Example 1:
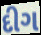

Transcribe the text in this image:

દીગ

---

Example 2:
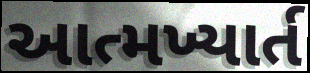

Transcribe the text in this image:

આત્મખ્યાર્ત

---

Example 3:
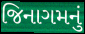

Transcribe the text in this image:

જિનાગમનું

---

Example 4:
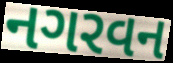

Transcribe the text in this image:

નગરવન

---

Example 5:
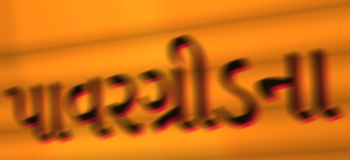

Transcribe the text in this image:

પાવરગ્રીડના